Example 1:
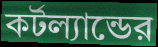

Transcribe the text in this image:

কর্টল্যান্ডের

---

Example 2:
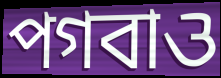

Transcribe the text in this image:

পগবাও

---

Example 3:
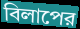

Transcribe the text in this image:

বিলাপের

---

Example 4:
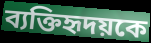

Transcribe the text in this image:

ব্যক্তিহৃদয়কে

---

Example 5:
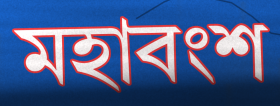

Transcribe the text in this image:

মহাবংশ